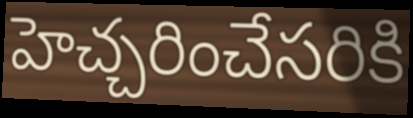
హెచ్చరించేసరికి